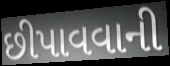
છીપાવવાની